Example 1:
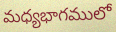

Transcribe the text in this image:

మధ్యభాగములో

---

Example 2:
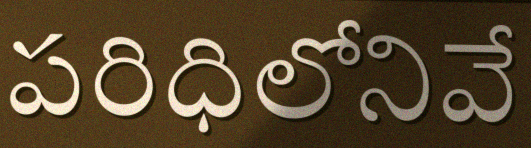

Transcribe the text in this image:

పరిధిలోనివే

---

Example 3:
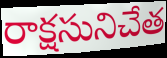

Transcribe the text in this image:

రాక్షసునిచేత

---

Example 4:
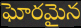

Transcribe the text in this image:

ఘోరమైన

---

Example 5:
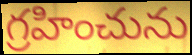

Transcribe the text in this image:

గ్రహించును